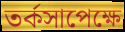
তর্কসাপেক্ষে